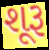
શૂરૂ